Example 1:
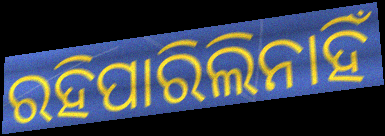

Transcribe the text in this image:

ରହିପାରିଲିନାହିଁ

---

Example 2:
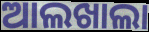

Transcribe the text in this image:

ଆଲଖାଲା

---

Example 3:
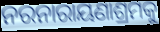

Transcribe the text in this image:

ନରନାରାୟଣାଶ୍ରମକୁ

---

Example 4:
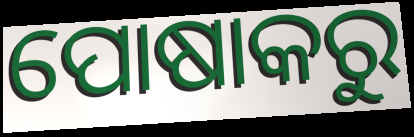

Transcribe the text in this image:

ପୋଷାକରୁ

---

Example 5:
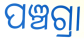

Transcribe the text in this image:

ପଞ୍ଚଗ୍ରା